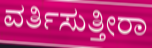
ವರ್ತಿಸುತ್ತೀರಾ